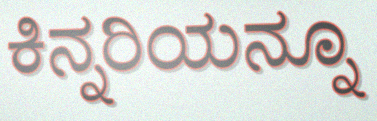
ಕಿನ್ನರಿಯನ್ನೂ